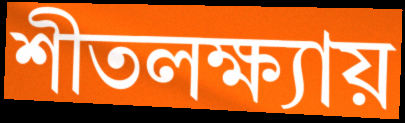
শীতলক্ষ্যায়